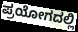
ಪ್ರಯೋಗದಲ್ಲಿ